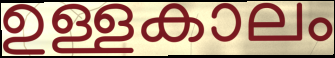
ഉള്ളകാലം